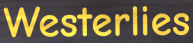
Westerlies